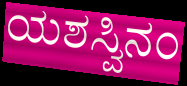
ಯಶಸ್ವಿನಂ